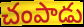
చంపాడు